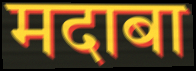
मदाबा